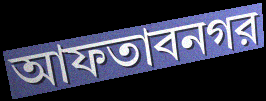
আফতাবনগর